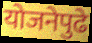
योजनेपुढे